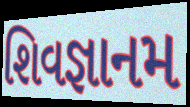
શિવજ્ઞાનમ